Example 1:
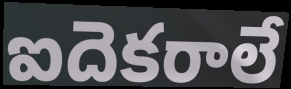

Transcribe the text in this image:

ఐదెకరాలే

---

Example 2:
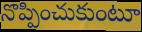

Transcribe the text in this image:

నొప్పించుకుంటూ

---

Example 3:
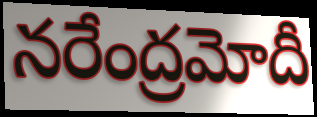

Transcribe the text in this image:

నరేంద్రమోదీ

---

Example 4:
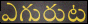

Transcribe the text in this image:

ఎగురుట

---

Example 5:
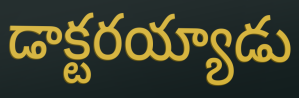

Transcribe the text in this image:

డాక్టరయ్యాడు